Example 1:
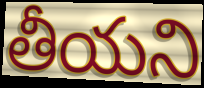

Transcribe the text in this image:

తీయని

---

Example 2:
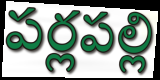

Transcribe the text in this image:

పర్లపల్లి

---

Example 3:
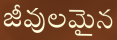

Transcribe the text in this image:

జీవులమైన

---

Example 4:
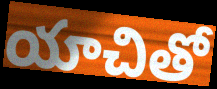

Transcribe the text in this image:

యాచితో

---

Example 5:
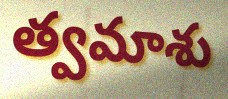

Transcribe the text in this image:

త్వమాశు